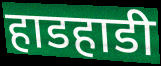
हाडहाडी